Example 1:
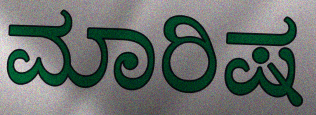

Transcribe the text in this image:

ಮಾರಿಷ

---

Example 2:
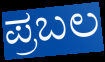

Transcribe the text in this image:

ಪ್ರಬಲ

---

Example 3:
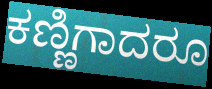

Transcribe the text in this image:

ಕಣ್ಣಿಗಾದರೂ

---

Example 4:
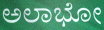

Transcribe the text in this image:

ಅಲಾಭೋ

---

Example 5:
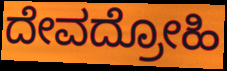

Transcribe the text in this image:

ದೇವದ್ರೋಹಿ